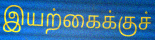
இயற்கைக்குச்